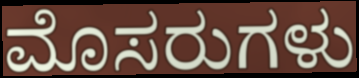
ಮೊಸರುಗಳು